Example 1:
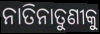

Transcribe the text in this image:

ନାତିନାତୁଣୀକୁ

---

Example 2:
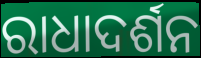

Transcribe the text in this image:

ରାଧାଦର୍ଶନ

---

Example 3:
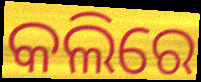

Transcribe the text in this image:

କଲିରେ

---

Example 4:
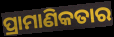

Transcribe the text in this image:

ପ୍ରାମାଣିକତାର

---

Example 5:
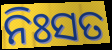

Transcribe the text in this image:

ନିଃସତ